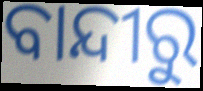
ବାନ୍ଦୀରୁ